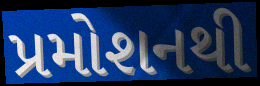
પ્રમોશનથી